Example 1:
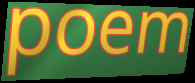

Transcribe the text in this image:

poem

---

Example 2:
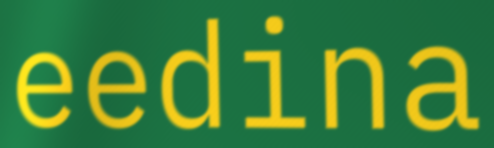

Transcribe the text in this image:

eedina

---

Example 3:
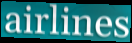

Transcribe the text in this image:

airlines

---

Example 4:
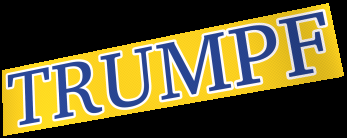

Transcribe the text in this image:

TRUMPF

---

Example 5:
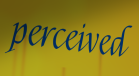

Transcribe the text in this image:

perceived